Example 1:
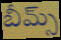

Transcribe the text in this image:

బీమ్స్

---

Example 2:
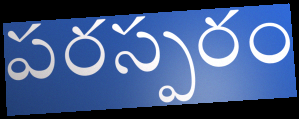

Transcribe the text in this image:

పరస్పరం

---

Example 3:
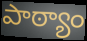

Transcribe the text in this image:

పాఠ్యాం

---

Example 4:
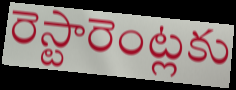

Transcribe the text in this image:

రెస్టారెంట్లకు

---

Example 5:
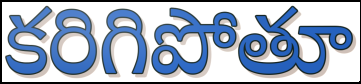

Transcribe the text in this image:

కరిగిపోతూ